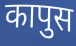
कापुस